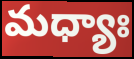
మధ్యాః